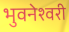
भुवनेश्वरी